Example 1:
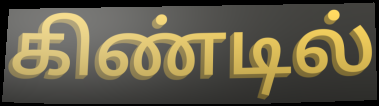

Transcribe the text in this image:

கிண்டில்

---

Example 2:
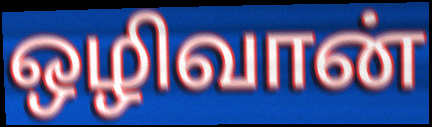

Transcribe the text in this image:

ஒழிவான்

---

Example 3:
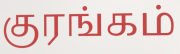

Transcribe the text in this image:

குரங்கம்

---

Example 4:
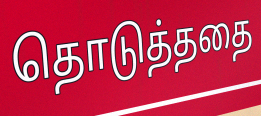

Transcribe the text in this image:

தொடுத்ததை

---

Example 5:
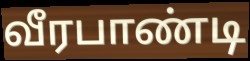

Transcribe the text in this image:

வீரபாண்டி